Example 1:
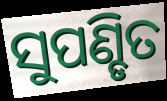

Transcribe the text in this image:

ସୁପଣ୍ଡିତ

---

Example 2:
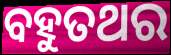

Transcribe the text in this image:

ବହୁତଥର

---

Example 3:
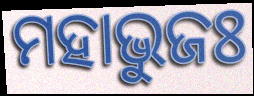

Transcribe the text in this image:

ମହାଭୁଜଃ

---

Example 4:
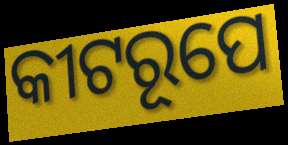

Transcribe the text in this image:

କୀଟରୂପେ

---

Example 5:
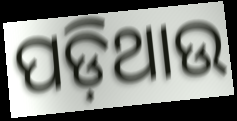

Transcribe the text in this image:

ପଡ଼ିଥାଉ